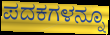
ಪದಕಗಳನ್ನೂ